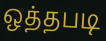
ஒத்தபடி